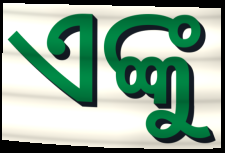
ଏଙ୍କୁ